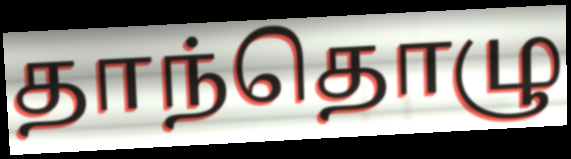
தாந்தொழு